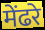
मेंढरे